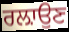
ਰਲ਼ਾਉਣ